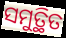
ସମୁତ୍ଥିତ